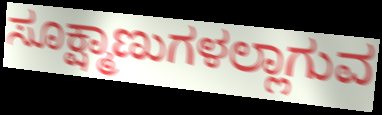
ಸೂಕ್ಷ್ಮಾಣುಗಳಲ್ಲಾಗುವ